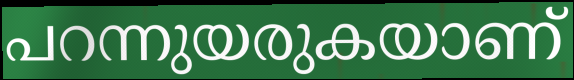
പറന്നുയരുകയാണ്